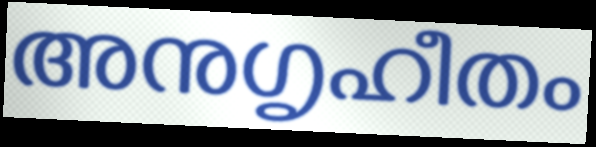
അനുഗൃഹീതം